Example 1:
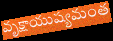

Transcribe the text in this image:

వృక్షాయుష్యమంత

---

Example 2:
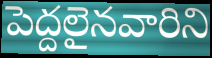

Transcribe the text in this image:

పెద్దలైనవారిని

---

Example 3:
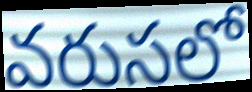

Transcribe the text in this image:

వరుసలో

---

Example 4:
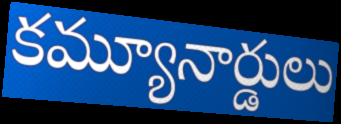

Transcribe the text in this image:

కమ్యూనార్డులు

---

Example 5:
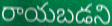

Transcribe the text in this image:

రాయబడని